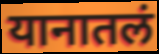
यानातलं